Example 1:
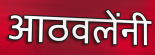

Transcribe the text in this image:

आठवलेंनी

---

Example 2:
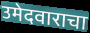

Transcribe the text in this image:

उमेदवाराचा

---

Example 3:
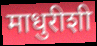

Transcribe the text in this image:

माधुरीशी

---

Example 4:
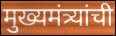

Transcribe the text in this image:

मुख्यमंत्र्यांची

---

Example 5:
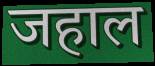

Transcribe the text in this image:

जहाल